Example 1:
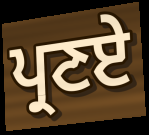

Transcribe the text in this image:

ਪ੍ਰਣਏ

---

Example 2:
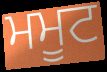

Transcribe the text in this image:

ਮਮੂਟ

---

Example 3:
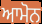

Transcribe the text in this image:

ਆਮੋਨ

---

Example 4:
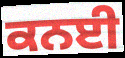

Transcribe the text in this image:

ਕਨਈ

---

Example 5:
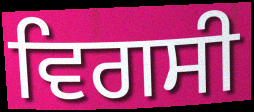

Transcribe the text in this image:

ਵਿਗਸੀ